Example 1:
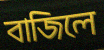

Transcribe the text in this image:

বাজিলে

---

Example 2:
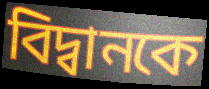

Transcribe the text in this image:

বিদ্বানকে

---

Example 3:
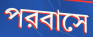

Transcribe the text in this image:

পরবাসে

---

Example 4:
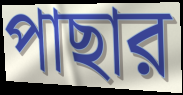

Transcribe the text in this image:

পাছার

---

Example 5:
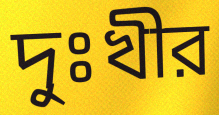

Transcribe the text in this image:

দুঃখীর